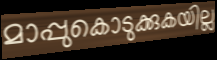
മാപ്പുകൊടുക്കുകയില്ല